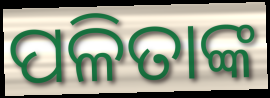
ପଳିତାଙ୍କ